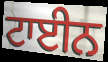
ਟਾਈਨ